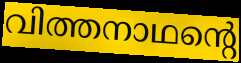
വിത്തനാഥന്റെ